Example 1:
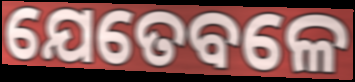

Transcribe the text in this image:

ଯେତେବଳେ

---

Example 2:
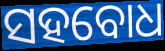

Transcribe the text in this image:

ସହବୋଧ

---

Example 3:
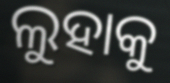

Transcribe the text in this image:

ଲୁହାକୁ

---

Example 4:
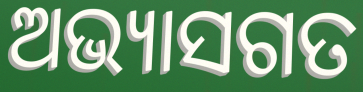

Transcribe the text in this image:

ଅଭ୍ଯାସଗତ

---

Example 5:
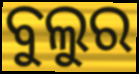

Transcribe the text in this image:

ବୁଲୁର